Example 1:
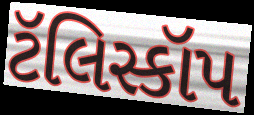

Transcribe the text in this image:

ટૅલિસ્કૉપ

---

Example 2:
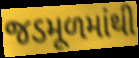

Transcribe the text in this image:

જડમૂળમાંથી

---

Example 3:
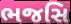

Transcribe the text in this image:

ભજસિ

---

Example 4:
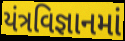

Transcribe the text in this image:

યંત્રવિજ્ઞાનમાં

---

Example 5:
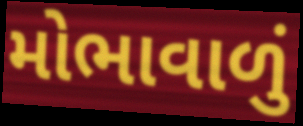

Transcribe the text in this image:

મોભાવાળું